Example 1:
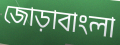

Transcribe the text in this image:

জোড়াবাংলা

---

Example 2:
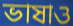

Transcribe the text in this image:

ভাষাও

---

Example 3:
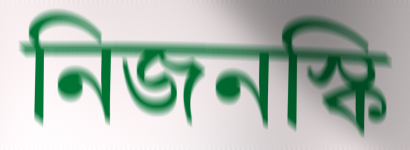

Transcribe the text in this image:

নিজনস্কি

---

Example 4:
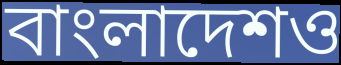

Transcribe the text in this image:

বাংলাদেশও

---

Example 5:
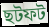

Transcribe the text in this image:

ছটফট